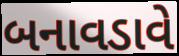
બનાવડાવે